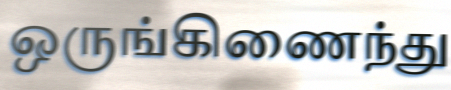
ஒருங்கிணைந்து